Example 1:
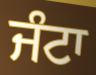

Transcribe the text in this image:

ਜੰਟਾ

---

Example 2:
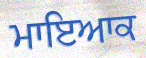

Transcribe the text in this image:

ਮਾਇਆਕ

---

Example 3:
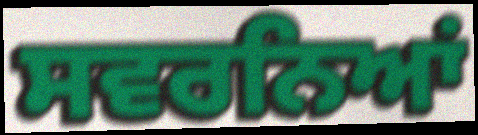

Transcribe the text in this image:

ਸਵਰਨਿਆਂ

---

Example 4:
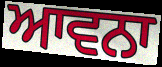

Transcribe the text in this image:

ਆਵਨਾ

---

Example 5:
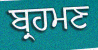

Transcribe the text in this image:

ਬ੍ਰਹਮਣ